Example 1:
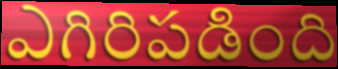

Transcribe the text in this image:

ఎగిరిపడింది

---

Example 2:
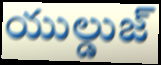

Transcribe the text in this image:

యుల్డుజ్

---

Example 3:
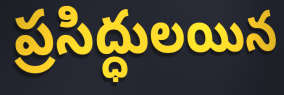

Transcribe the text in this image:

ప్రసిద్ధులయిన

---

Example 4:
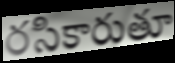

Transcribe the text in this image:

రసికారుతూ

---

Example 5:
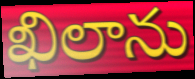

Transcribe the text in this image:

ఖిలాను